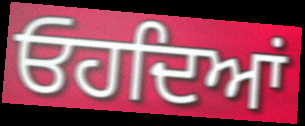
ਓਹਦਿਆਂ